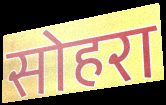
सोहरा